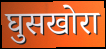
घुसखोरा